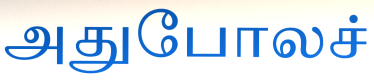
அதுபோலச்